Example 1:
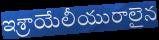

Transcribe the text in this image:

ఇశ్రాయేలీయురాలైన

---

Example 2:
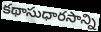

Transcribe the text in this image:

కథాసుధారసాన్ని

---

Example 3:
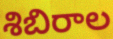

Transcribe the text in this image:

శిబిరాల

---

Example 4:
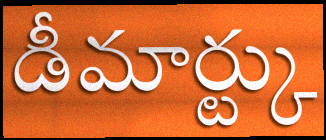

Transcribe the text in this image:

డీమార్ట్కు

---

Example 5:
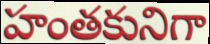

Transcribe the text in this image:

హంతకునిగా